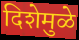
दिशेमुळे